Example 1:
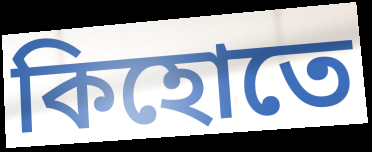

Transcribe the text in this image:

কিহোতে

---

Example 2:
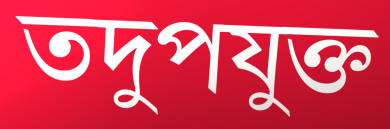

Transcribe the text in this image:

তদুপযুক্ত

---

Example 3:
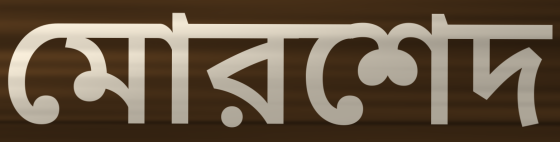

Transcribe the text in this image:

মোরশেদ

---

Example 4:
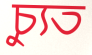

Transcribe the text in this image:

চ্যুত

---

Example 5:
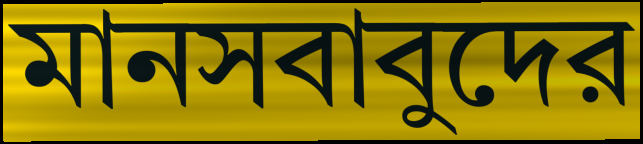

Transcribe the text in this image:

মানসবাবুদের